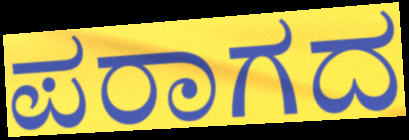
ಪರಾಗದ